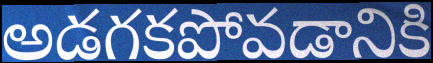
అడగకపోవడానికి